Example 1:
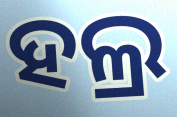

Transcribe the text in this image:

ହଲ୍ର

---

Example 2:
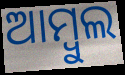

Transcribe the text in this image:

ଆମ୍ବୁଲ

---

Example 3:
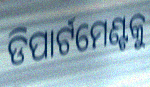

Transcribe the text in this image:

ଡିପାର୍ଟମେଣ୍ଟକୁ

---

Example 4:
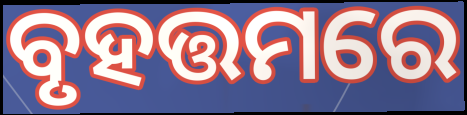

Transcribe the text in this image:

ବୃହତ୍ତମରେ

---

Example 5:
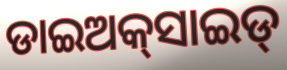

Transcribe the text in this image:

ଡାଇଅକ୍‌ସାଇଡ୍